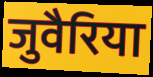
जुवैरिया